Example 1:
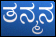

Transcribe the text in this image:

ತನ್ಮನ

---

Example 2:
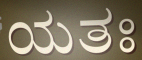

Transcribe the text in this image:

ಯತಃ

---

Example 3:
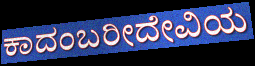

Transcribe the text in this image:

ಕಾದಂಬರೀದೇವಿಯ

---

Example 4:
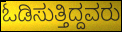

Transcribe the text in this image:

ಓಡಿಸುತ್ತಿದ್ದವರು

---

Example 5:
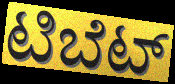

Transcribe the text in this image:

ಟಿಬೆಟ್